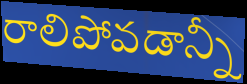
రాలిపోవడాన్నీ